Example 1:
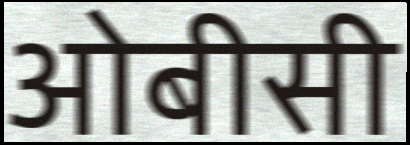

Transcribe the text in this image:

ओबीसी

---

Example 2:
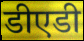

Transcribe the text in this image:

डीएडी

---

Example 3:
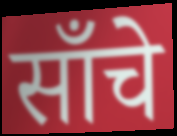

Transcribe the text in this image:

साँचे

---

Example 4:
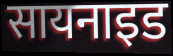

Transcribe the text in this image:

सायनाइड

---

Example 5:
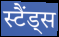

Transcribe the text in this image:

स्टैंड्स